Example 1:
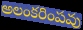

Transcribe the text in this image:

అలంకరింపవు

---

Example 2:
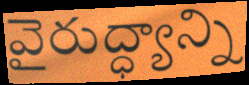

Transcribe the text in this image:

వైరుద్ధ్యాన్ని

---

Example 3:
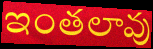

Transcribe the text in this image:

ఇంతలావు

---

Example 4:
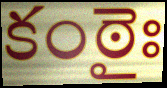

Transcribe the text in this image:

కంఠైః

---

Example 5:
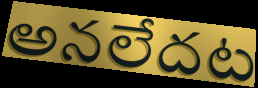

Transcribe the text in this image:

అనలేదట